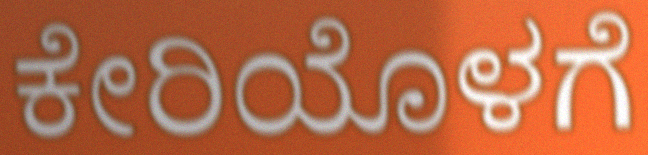
ಕೇರಿಯೊಳಗೆ